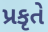
પ્રકૃતે